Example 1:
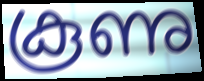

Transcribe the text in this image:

കൂണു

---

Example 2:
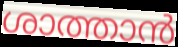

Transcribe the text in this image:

ശാത്താൻ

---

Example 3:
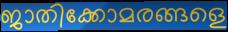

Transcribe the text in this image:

ജാതിക്കോമരങ്ങളെ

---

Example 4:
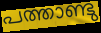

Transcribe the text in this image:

പത്താണ്ടു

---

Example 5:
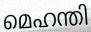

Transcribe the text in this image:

മെഹന്തി